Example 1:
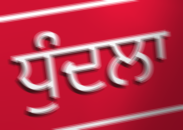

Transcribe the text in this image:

ਧੁੰਦਲਾ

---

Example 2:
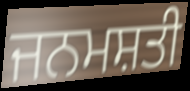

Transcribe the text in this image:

ਜਨਮਸ਼ਤੀ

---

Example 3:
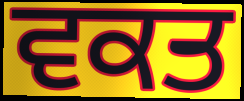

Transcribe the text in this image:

ਵਕਤ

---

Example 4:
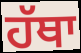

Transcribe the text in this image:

ਹੱਥਾ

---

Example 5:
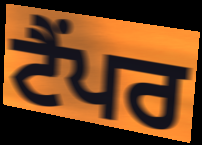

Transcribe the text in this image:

ਟੈਂਪਰ